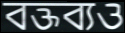
বক্তব্যও